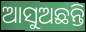
ଆସୁଅଛନ୍ତି